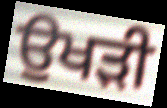
ਉਖੜੀ